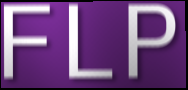
FLP